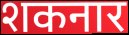
शकनार